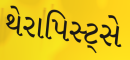
થેરાપિસ્ટ્સે